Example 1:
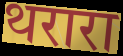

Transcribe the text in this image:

थरारा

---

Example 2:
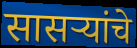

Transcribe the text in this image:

सासर्‍यांचे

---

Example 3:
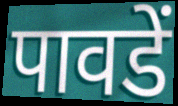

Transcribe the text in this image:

पावडें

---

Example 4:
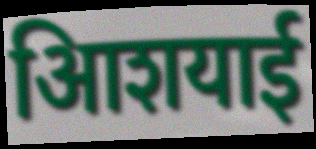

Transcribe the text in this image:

आिशयाई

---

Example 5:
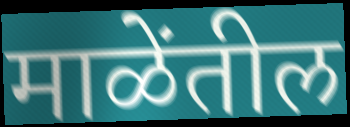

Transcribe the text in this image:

माळेंतील